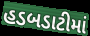
હડબડાટીમાં